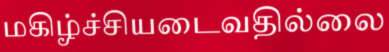
மகிழ்ச்சியடைவதில்லை